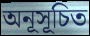
অনূসূচিত